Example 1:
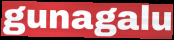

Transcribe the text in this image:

gunagalu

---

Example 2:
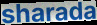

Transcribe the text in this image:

sharada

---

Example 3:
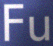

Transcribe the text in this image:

Fu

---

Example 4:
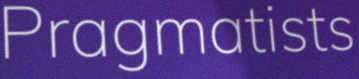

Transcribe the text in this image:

Pragmatists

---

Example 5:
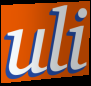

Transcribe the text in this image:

uli